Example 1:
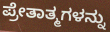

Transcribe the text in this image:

ಪ್ರೇತಾತ್ಮಗಳನ್ನು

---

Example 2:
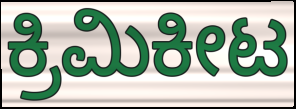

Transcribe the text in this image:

ಕ್ರಿಮಿಕೀಟ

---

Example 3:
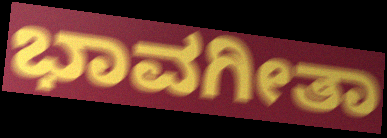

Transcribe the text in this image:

ಭಾವಗೀತಾ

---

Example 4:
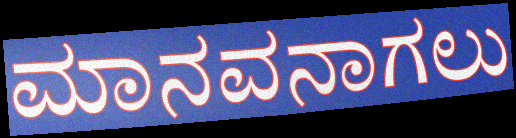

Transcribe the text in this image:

ಮಾನವನಾಗಲು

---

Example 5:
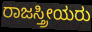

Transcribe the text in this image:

ರಾಜಸ್ತ್ರೀಯರು